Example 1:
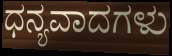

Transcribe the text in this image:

ಧನ್ಯವಾದಗಳು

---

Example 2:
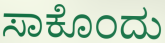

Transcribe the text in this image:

ಸಾಕೊಂದು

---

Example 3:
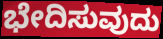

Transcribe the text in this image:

ಭೇದಿಸುವುದು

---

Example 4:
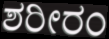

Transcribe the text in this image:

ಶರೀರಂ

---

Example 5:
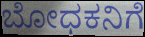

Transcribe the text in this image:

ಬೋಧಕನಿಗೆ